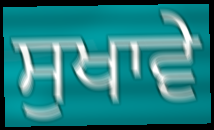
ਸੁਖਾਵੇ